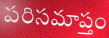
పరిసమాప్తం